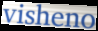
visheno